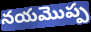
నయమొప్ప